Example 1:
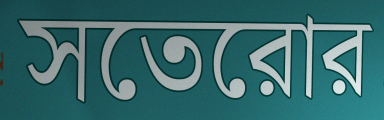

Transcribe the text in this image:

সতেরোর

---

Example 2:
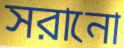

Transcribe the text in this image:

সরানো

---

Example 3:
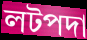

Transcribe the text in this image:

লটপদা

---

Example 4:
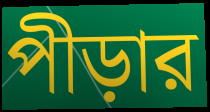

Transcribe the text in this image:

পীড়ার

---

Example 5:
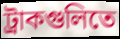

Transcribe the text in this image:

ট্রাকগুলিতে